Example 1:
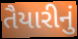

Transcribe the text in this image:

તૈયારીનું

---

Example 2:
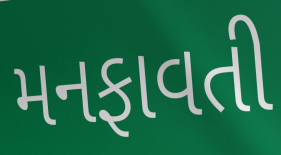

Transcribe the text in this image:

મનફાવતી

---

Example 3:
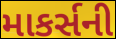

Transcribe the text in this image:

માકર્સની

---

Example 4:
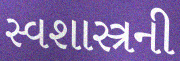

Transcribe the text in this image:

સ્વશાસ્ત્રની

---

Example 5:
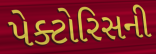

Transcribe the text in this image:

પેક્ટોરિસની